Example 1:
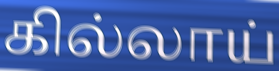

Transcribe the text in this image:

கில்லாய்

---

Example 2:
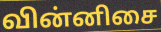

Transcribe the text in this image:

வின்னிசை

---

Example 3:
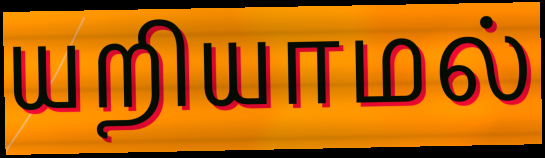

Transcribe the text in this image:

யறியாமல்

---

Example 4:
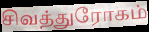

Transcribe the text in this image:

சிவத்துரோகம்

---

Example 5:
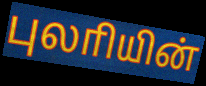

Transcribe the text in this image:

புலரியின்